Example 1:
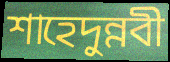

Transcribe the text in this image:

শাহেদুন্নবী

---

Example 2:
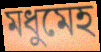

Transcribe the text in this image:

মধুমেহ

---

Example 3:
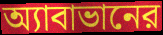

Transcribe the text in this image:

অ্যাবাভানের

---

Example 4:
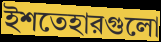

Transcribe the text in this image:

ইশতেহারগুলো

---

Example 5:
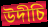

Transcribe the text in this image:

উদীচি